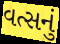
વત્સનું